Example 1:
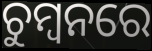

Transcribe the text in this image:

ଚୁମ୍ୱନରେ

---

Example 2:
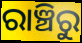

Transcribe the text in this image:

ରାଞ୍ଚିରୁ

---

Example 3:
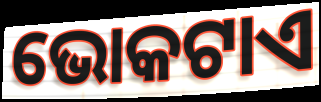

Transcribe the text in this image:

ଭୋକଟାଏ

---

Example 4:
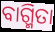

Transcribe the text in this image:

ବାଗ୍ମିତା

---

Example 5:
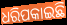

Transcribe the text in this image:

ଧରିପକାଇଛି